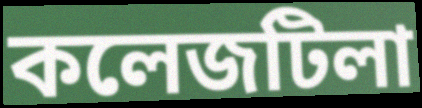
কলেজটিলা